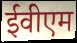
ईवीएम